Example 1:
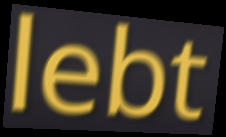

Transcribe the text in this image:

lebt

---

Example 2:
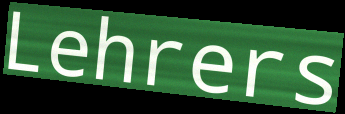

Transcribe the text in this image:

Lehrers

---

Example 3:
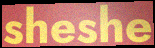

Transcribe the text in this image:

sheshe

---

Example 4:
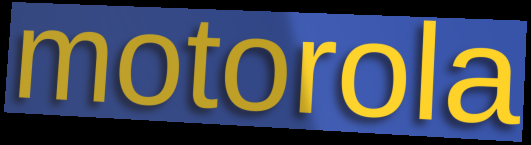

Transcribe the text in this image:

motorola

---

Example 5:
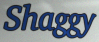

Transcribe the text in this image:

Shaggy